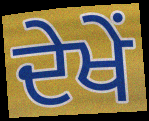
ਦੇਖੇਂ